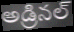
అడ్రినల్